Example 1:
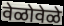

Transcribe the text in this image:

वेळोवेळे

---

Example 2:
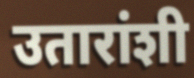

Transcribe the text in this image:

उतारांशी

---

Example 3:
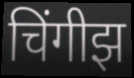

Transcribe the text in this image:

चिंगीझ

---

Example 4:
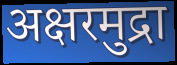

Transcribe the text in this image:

अक्षरमुद्रा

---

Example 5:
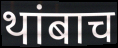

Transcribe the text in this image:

थांबाच